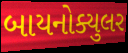
બાયનોક્યુલર